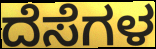
ದೆಸೆಗಳ